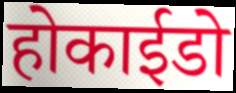
होकाईडो